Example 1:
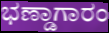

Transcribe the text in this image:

ಭಣ್ಡಾಗಾರಂ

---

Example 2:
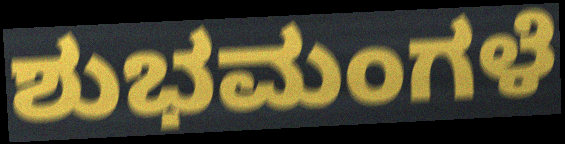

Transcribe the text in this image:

ಶುಭಮಂಗಳೆ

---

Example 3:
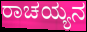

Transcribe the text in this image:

ರಾಚಯ್ಯನ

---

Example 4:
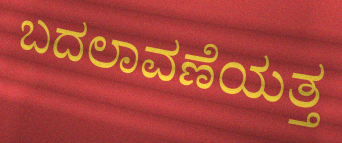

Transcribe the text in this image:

ಬದಲಾವಣೆಯತ್ತ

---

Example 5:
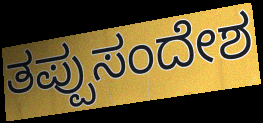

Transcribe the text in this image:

ತಪ್ಪುಸಂದೇಶ